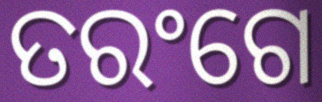
ତରଂଗେ